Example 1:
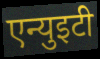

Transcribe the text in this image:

एन्युइटी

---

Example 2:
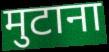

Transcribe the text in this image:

मुटाना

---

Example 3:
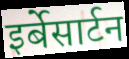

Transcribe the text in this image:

इर्बेसार्टन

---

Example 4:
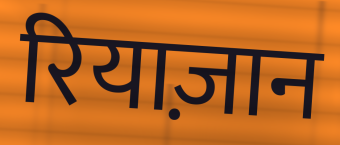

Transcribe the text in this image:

रियाज़ान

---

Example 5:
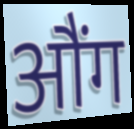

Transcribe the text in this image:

औंग